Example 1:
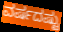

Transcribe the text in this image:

ವರ್ಷದಷ್ಟು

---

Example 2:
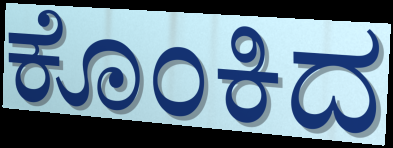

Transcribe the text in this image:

ಕೊಂಕಿದ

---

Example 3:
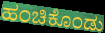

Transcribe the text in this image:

ಹಂಚಿಕೊಂಡು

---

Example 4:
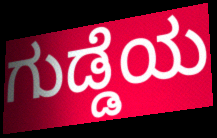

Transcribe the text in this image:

ಗುಡ್ಡೆಯ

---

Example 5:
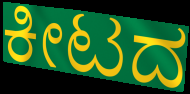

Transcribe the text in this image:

ಕೀಟದ